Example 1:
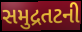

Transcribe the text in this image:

સમુદ્રતટની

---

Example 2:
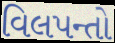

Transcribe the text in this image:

વિલપન્તો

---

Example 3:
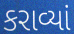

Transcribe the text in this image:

કરાવ્યાં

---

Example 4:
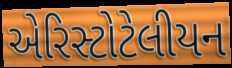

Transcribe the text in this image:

એરિસ્ટોટેલીયન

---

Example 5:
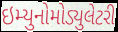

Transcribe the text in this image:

ઇમ્યુનોમોડ્યુલેટરી